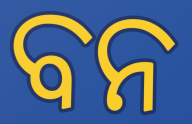
ବନ